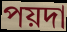
পয়দা